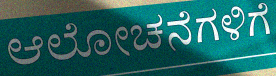
ಆಲೋಚನೆಗಳಿಗೆ